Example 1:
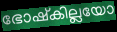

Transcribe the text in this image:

ഭോഷ്കില്ലയോ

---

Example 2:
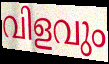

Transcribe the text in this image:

വിളവും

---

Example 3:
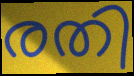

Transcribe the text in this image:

രതി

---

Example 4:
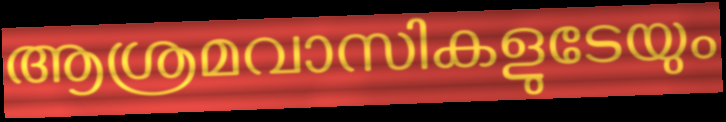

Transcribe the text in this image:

ആശ്രമവാസികളുടേയും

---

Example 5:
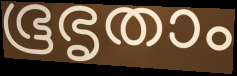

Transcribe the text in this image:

ഭൂഭൃതാം